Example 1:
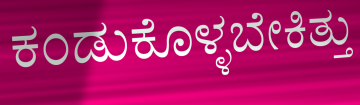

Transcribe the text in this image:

ಕಂಡುಕೊಳ್ಳಬೇಕಿತ್ತು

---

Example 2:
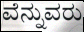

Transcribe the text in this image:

ವೆನ್ನುವರು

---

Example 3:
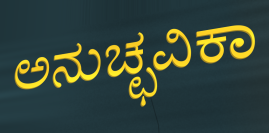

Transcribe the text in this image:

ಅನುಚ್ಛವಿಕಾ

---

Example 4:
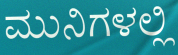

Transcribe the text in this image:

ಮುನಿಗಳಲ್ಲಿ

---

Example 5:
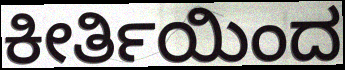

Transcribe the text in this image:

ಕೀರ್ತಿಯಿಂದ